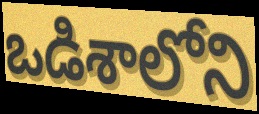
ఒడిశాలోని